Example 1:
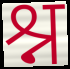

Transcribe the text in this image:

श्न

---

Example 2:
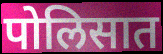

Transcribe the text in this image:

पोलिसात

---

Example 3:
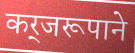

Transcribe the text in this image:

कर्जरूपाने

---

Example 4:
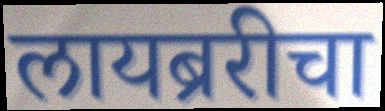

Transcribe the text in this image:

लायब्ररीचा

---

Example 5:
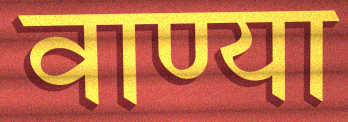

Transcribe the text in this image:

वाण्या